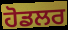
ਹੋਡਲਰ